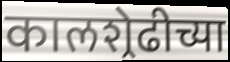
कालश्रेढीच्या